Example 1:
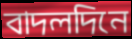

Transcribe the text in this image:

বাদলদিনে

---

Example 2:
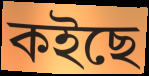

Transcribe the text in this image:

কইছে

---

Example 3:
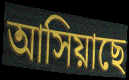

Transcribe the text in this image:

আসিয়াছে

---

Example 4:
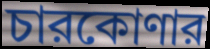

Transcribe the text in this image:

চারকোণার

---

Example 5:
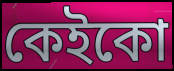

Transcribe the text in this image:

কেইকো